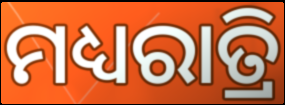
ମଧ୍ୟରାତ୍ରି